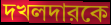
দখলদারকে